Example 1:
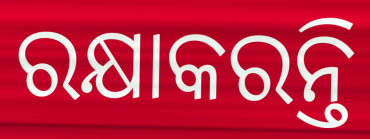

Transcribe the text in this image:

ରକ୍ଷାକରନ୍ତି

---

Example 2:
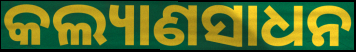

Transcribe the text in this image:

କଲ୍ୟାଣସାଧନ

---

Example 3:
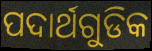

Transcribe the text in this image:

ପଦାର୍ଥଗୁଡିକ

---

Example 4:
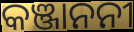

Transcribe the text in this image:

କଞ୍ଜାନନୀ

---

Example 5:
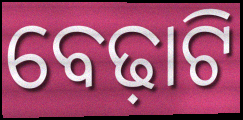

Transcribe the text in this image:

ବେଢ଼ାଟି